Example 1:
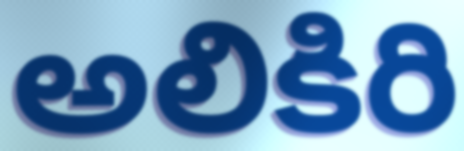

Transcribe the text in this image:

అలికిరి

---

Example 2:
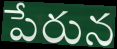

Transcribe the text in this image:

పేరున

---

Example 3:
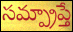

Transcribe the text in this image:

సమ్ప్రాప్తే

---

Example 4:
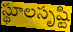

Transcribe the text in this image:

స్థూలసృష్టి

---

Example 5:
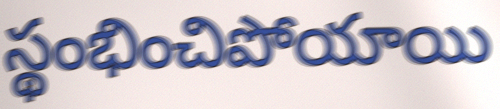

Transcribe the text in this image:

స్థంభించిపోయాయి